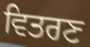
ਵਿਤਰਣ